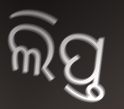
ଲିପ୍ତ